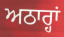
ਅਠਾਰ੍ਹਾਂ